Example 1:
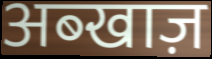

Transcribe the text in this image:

अब्खाज़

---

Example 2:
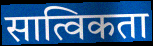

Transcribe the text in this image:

सात्विकता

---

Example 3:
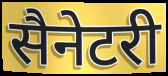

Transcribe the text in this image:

सैनेटरी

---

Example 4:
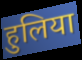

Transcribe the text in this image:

हुलिया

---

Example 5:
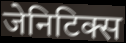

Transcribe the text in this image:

जेनिटिक्स